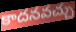
కాదనవచ్చు